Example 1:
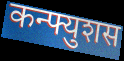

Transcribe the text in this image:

कन्फ्युशस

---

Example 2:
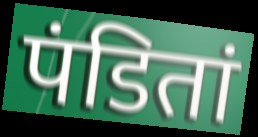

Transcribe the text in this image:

पंडितां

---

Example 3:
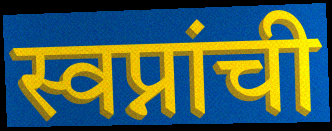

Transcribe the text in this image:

स्वप्नांची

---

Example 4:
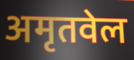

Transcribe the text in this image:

अमृतवेल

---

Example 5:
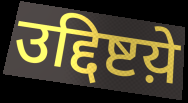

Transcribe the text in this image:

उद्दिष्टय़े